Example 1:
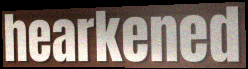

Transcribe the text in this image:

hearkened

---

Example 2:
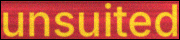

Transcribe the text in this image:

unsuited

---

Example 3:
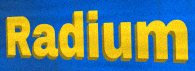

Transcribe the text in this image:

Radium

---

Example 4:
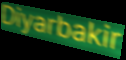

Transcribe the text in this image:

Diyarbakir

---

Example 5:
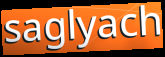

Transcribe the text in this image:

saglyach